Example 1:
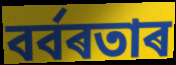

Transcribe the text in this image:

বৰ্বৰতাৰ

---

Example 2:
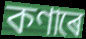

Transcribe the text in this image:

কণাৰে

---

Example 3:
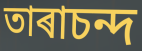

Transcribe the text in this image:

তাৰাচন্দ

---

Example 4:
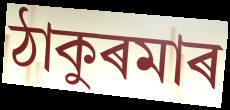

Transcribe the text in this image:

ঠাকুৰমাৰ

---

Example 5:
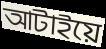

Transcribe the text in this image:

আটাইয়ে